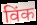
विंक